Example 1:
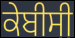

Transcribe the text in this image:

ਕੇਬੀਸੀ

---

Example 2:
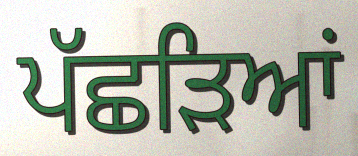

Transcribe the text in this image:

ਪੱਛੜਿਆਂ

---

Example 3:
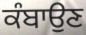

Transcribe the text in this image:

ਕੰਬਾਉਣ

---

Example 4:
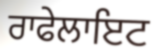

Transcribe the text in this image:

ਰਾਫੇਲਾਇਟ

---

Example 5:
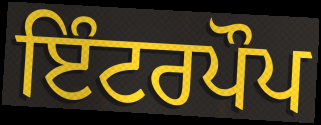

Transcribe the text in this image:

ਇੰਟਰਪੌਪ